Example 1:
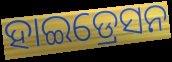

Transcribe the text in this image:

ହାଇଡ୍ରେସନ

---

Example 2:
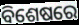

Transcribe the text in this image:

ବିଶେଷରେ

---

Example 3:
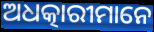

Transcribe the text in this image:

ଅଧତ୍କାରୀମାନେ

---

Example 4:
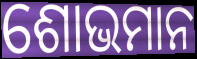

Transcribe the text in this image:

ଶୋଭମାନ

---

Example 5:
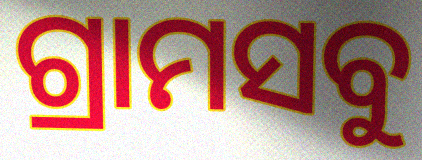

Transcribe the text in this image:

ଗ୍ରାମସବୁ